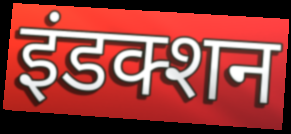
इंडक्शन